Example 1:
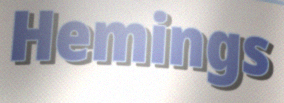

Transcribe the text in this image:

Hemings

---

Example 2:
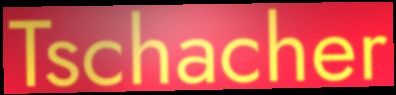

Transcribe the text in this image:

Tschacher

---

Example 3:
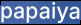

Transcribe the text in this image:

papaiya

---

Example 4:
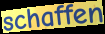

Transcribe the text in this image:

schaffen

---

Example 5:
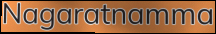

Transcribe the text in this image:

Nagaratnamma